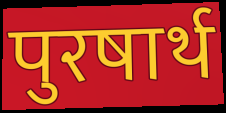
पुरषार्थ